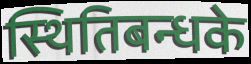
स्थितिबन्धके